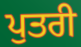
ਪੁਤਰੀ